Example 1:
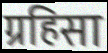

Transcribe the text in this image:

ग्रहिसा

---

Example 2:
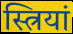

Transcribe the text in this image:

स्त्रियां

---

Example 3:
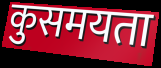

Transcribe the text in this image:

कुसमयता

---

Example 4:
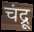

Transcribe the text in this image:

चंद्रू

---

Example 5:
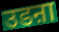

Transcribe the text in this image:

उडऩा